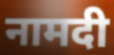
नामदी